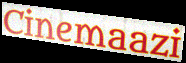
Cinemaazi